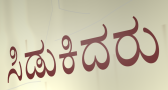
ಸಿಡುಕಿದರು